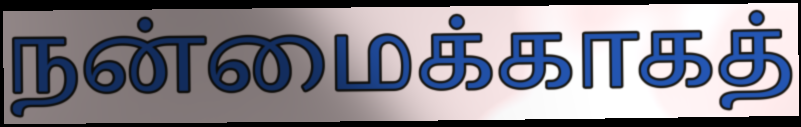
நன்மைக்காகத்